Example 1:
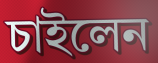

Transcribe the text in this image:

চাইলেন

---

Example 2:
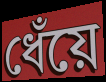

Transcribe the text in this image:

ধেঁয়ে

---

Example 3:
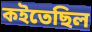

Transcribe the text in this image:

কইতেছিল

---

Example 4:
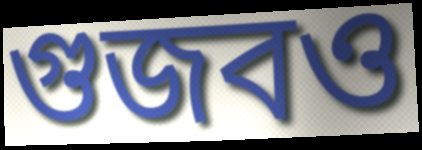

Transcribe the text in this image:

গুজবও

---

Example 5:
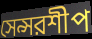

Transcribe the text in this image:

সেন্সরশীপ